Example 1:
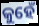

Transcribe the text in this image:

କୁହେଁ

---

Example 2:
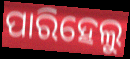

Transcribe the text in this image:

ପାରିହେଲୁ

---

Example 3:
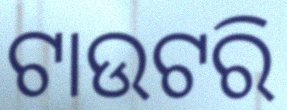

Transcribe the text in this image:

ଟାଉଟରି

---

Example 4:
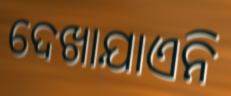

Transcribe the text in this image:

ଦେଖାଯାଏନି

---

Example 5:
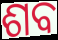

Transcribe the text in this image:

ଶବ